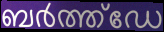
ബർത്ത്ഡേ